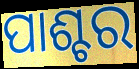
ପାଶ୍ଚର